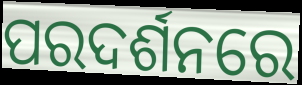
ପରଦର୍ଶନରେ